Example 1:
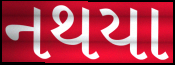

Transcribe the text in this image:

નથયા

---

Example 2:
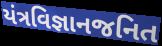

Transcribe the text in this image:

યંત્રવિજ્ઞાનજનિત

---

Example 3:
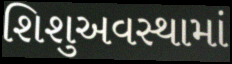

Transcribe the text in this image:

શિશુઅવસ્થામાં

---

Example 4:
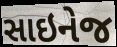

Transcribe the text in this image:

સાઇનેજ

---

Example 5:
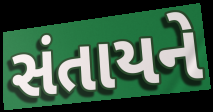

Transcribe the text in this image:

સંતાયને